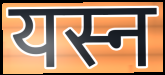
यस्न